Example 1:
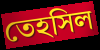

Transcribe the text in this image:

তেহসিল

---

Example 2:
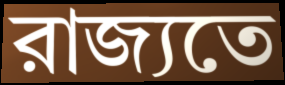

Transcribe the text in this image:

রাজ্যতে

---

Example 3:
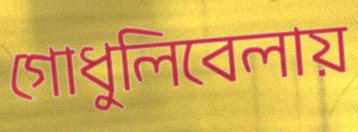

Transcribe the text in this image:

গোধুলিবেলায়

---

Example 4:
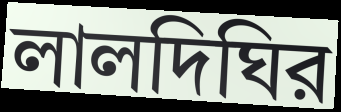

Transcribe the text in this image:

লালদিঘির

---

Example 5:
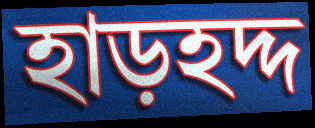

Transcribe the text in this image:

হাড়হদ্দ